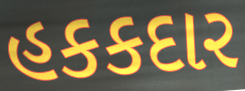
હકકદાર